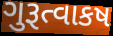
ગુરૂત્વાકષ